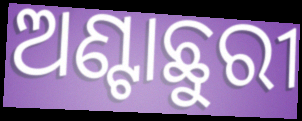
ଅଣ୍ଟାଛୁରୀ